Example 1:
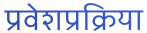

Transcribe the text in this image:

प्रवेशप्रक्रिया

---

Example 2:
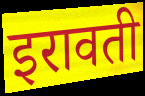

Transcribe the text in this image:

इरावती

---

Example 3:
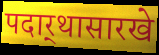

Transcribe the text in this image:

पदार्थासारखे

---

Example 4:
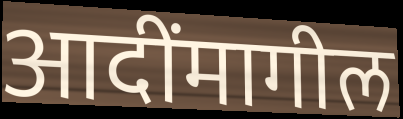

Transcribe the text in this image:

आदींमागील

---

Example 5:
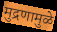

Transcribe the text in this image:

मुद्रणामुळे